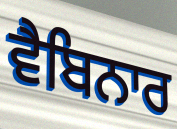
ਵੈਬਿਨਾਰ